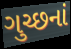
ગુચ્છનાં